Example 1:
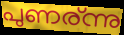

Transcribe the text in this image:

പുണര്ന്നു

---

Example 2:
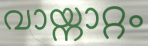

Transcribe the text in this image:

വായ്നാറ്റം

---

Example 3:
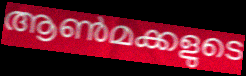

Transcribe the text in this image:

ആൺമക്കളുടെ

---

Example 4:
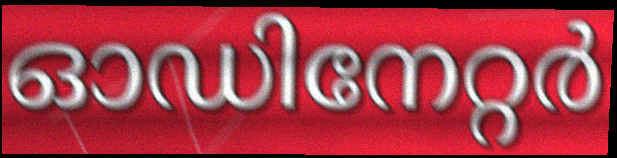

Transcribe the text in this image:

ഓഡിനേറ്റർ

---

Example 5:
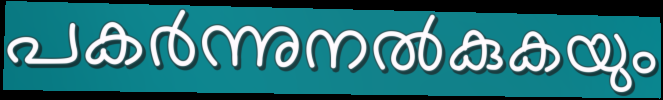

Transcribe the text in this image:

പകർന്നുനൽകുകയും